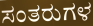
ಸಂತರುಗಳ